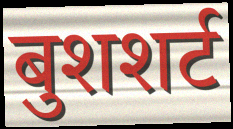
बुशशर्ट